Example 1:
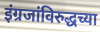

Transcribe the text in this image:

इंग्रजांविरुद्धच्या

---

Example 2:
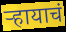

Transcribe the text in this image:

ऱ्हायाचं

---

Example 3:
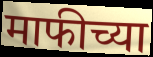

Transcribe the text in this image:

माफीच्या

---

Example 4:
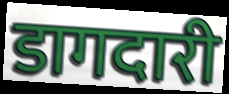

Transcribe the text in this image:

डागदारी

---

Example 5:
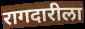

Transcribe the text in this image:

रागदारीला